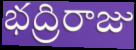
భద్రిరాజు